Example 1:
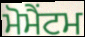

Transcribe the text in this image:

ਮੋਮੈਂਟਮ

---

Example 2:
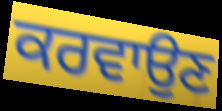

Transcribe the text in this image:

ਕਰਵਾਉਣ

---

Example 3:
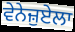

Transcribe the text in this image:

ਵੇਨੇਜ਼ੁਏਲਾ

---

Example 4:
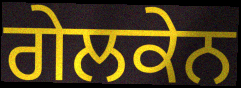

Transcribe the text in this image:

ਗੇਲਕੇਨ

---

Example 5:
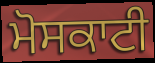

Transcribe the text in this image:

ਮੋਸਕਾਟੀ